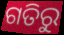
ଗତିରୁ